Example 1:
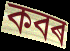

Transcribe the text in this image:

কবৰ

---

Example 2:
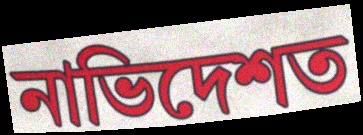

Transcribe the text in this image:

নাভিদেশত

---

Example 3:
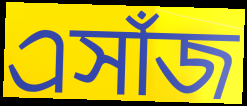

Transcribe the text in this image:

এসাঁজ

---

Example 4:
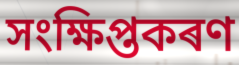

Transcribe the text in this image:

সংক্ষিপ্তকৰণ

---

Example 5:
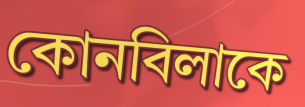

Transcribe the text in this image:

কোনবিলাকে